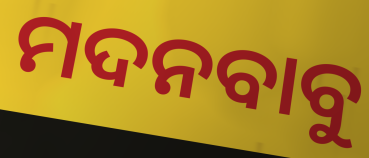
ମଦନବାବୁ